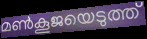
മൺകൂജയെടുത്ത്